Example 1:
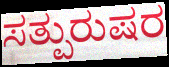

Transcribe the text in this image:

ಸತ್ಪುರುಷರ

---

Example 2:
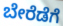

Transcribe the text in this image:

ಬೇರೆಡೆಗೆ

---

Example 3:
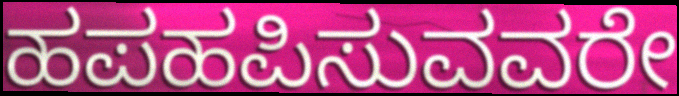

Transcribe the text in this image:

ಹಪಹಪಿಸುವವರೇ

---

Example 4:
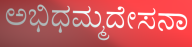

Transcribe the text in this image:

ಅಭಿಧಮ್ಮದೇಸನಾ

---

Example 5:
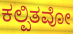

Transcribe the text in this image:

ಕಲ್ಪಿತವೋ